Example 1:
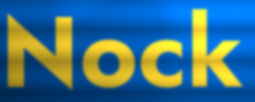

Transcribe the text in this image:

Nock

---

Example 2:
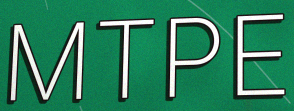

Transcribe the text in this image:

MTPE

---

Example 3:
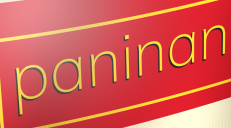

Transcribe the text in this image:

paninan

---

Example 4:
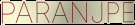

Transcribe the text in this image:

PARANJPE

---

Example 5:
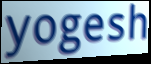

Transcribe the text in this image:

yogesh